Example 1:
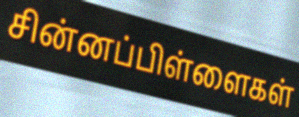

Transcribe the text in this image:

சின்னப்பிள்ளைகள்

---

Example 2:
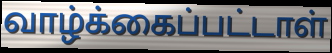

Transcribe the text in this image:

வாழ்க்கைப்பட்டாள்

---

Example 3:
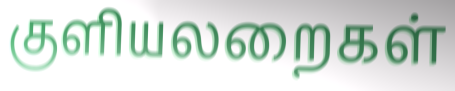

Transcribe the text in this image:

குளியலறைகள்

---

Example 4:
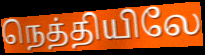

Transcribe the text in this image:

நெத்தியிலே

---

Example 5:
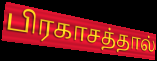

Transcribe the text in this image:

பிரகாசத்தால்